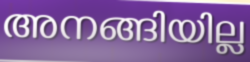
അനങ്ങിയില്ല